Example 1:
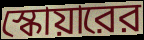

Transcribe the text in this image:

স্কোয়ারের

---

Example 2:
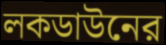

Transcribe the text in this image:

লকডাউনের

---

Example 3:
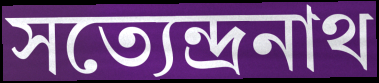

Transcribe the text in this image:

সত্যেন্দ্রনাথ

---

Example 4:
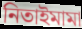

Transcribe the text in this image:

নিতাইমামা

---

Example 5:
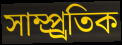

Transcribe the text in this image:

সাম্প্র্রতিক